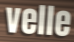
velle